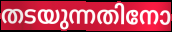
തടയുന്നതിനോ